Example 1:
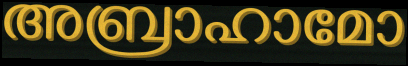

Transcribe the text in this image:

അബ്രാഹാമോ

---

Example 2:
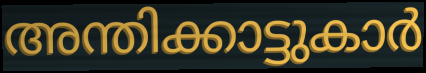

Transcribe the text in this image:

അന്തിക്കാട്ടുകാർ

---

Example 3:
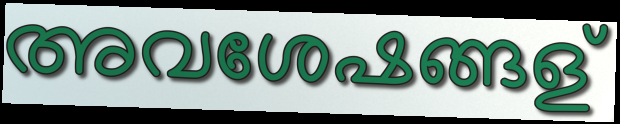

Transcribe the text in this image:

അവശേഷങ്ങള്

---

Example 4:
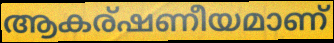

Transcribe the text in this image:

ആകര്ഷണീയമാണ്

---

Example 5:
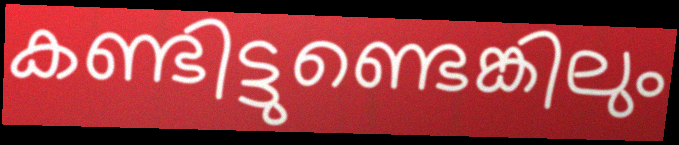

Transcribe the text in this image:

കണ്ടിട്ടുണ്ടെങ്കിലും